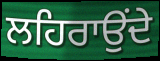
ਲਹਿਰਾਉਂਦੇ